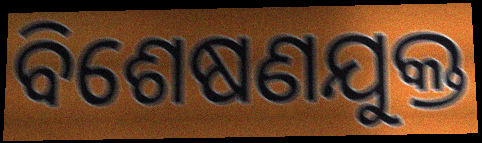
ବିଶେଷଣଯୁକ୍ତ